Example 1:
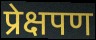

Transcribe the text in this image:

प्रेक्षपण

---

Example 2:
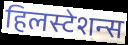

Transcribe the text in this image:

हिलस्टेशन्स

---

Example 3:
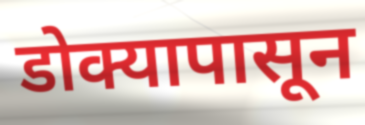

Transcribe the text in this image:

डोक्यापासून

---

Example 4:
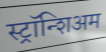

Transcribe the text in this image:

स्ट्रॉन्शिअम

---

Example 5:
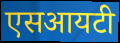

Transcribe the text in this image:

एसआयटी